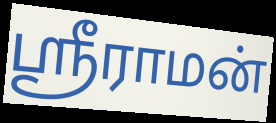
ஸ்ரீராமன்